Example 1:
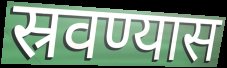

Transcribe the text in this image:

स्रवण्यास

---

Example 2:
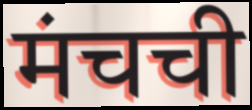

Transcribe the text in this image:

मंचची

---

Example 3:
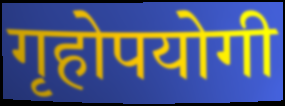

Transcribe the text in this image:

गृहोपयोगी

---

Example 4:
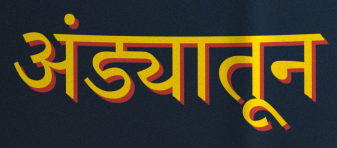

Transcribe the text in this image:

अंड्यातून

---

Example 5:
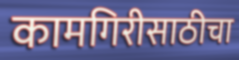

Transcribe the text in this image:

कामगिरीसाठीचा